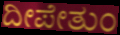
ದೀಪೇತುಂ